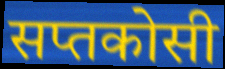
सप्तकोसी